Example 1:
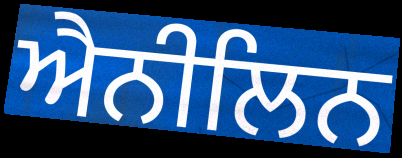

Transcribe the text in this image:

ਐਨੀਲਿਨ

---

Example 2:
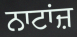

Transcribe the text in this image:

ਨਾਟਾਂਜ਼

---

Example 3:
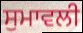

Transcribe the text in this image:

ਸੁਮਾਵਲੀ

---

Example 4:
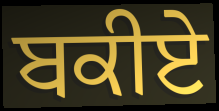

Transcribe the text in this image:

ਬਕੀਏ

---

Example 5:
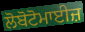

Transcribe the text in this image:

ਲੋਬੋਟੋਮਾਈਜ਼